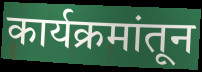
कार्यक्रमांतून